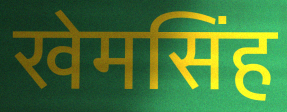
खेमसिंह